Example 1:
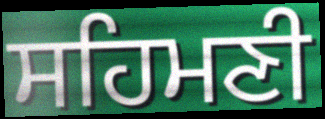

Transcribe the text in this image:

ਸਹਿਮਣੀ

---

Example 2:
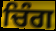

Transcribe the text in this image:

ਚਿੰਗ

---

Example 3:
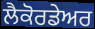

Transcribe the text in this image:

ਲੈਕੋਰਡੇਅਰ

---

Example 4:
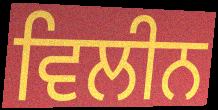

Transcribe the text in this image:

ਵਿਲੀਨ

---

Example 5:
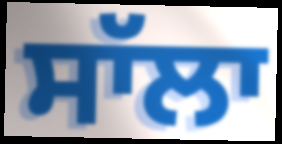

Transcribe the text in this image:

ਸਾੱਲਾ